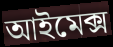
আইমেক্স